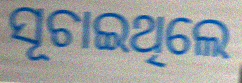
ସୂଚାଇଥିଲେ